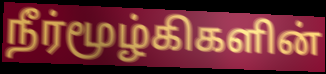
நீர்மூழ்கிகளின்